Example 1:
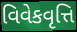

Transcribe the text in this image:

વિવેકવૃત્તિ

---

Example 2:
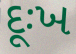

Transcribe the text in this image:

દૂઃખ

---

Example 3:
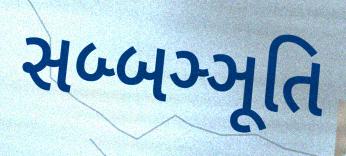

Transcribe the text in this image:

સબ્બઞ્ઞૂતિ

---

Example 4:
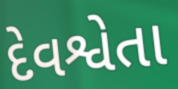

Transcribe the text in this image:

દેવશ્વેતા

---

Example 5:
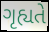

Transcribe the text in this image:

ગૃહ્યતે